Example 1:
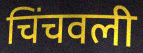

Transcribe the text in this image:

चिंचवली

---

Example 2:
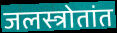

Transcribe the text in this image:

जलस्त्रोतांत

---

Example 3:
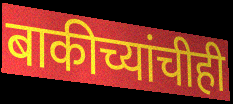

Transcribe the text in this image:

बाकीच्यांचीही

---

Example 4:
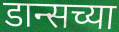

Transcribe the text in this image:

डान्सच्या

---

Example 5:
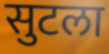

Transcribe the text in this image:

सुटला